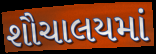
શૌચાલયમાં